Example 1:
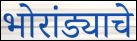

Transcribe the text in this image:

भोरांड्याचे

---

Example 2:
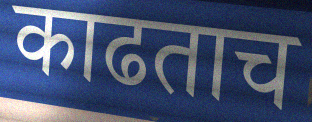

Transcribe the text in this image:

काढताच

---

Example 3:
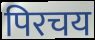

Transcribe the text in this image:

पिरचय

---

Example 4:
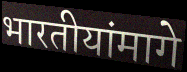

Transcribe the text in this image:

भारतीयांमागे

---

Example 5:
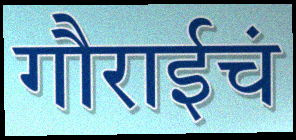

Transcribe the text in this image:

गौराईचं